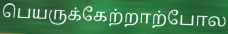
பெயருக்கேற்றாற்போல